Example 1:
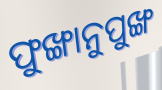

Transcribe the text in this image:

ଫୁଙ୍ଖାନୁପୁଙ୍ଖ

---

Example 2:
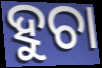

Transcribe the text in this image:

ହୁଚା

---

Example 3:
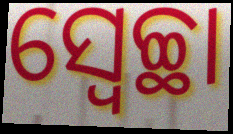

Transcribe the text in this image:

ସ୍ବେଚ୍ଛା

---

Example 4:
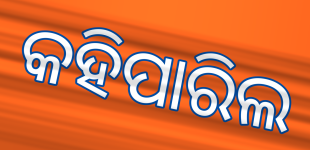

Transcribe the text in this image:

କହିପାରିଲ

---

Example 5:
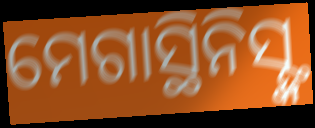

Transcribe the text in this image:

ମେଗାସ୍ଥିନିସ୍ଙ୍କ